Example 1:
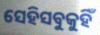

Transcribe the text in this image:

ସେହିସବୁକୁହିଁ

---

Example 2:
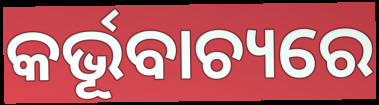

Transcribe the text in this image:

କର୍ଭୂବାଚ୍ୟରେ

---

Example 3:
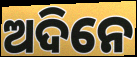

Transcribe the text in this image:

ଅଦିନେ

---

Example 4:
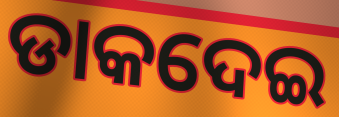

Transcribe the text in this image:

ଡାକଦେଇ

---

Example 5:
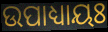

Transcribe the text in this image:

ଉପାଧ୍ୟାୟଃ